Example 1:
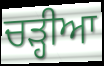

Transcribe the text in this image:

ਚੜ੍ਹੀਆ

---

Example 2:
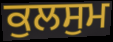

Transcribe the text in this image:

ਕੁਲਸੁਮ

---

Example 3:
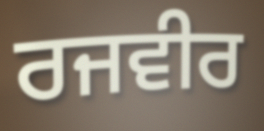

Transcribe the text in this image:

ਰਜਵੀਰ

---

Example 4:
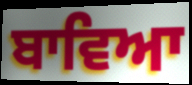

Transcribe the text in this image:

ਬਾਵਿਆ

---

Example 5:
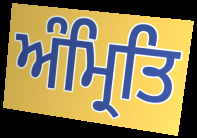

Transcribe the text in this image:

ਅੰਮ੍ਰਿਤਿ